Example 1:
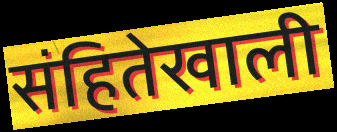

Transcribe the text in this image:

संहितेखाली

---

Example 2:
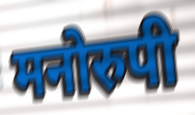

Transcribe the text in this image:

मनोरुपी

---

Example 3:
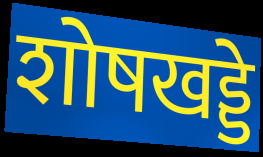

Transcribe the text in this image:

शोषखड्डे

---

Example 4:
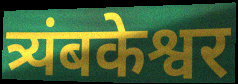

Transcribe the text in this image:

त्र्यंबकेश्वर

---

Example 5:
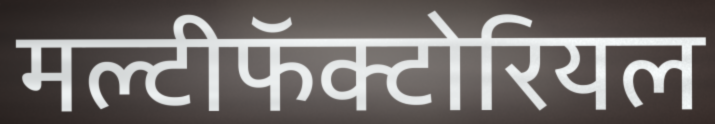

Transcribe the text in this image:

मल्टीफॅक्टोरियल